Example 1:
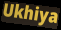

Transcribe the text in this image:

Ukhiya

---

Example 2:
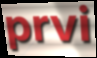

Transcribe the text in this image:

prvi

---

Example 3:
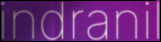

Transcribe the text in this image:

indranil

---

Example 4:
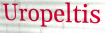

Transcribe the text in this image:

Uropeltis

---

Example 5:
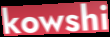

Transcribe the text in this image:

kowshi